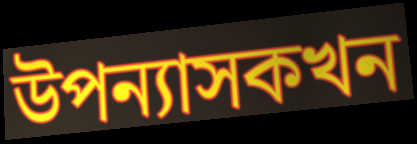
উপন্যাসকখন